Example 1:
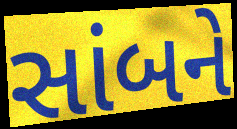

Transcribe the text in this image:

સાંબને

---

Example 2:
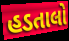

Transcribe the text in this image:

હડતાલો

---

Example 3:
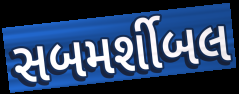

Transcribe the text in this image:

સબમર્શીબલ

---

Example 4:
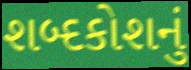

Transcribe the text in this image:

શબ્દકોશનું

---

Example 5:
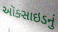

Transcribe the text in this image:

ઑક્સાઇડનું